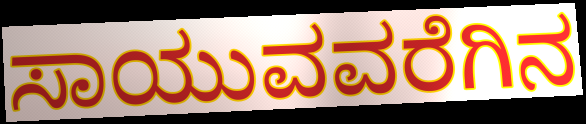
ಸಾಯುವವರೆಗಿನ